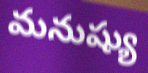
మనుష్యు